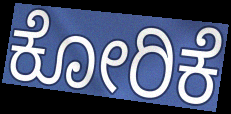
ಕೋರಿಕೆ